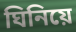
ঘিনিয়ে